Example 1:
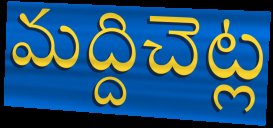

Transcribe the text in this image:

మద్దిచెట్ల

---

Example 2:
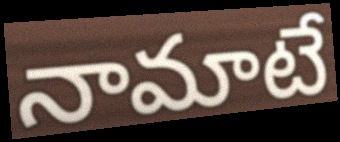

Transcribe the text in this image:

నామాటే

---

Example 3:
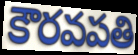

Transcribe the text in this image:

కౌరవపతి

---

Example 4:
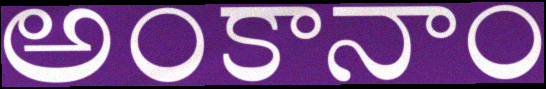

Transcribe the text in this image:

అంకానాం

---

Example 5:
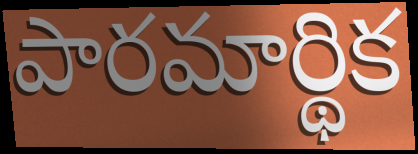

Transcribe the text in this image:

పారమార్థిక